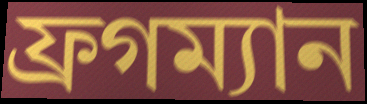
ফ্রগম্যান